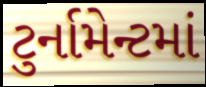
ટુર્નામેન્ટમાં